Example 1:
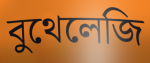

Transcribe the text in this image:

বুথেলেজি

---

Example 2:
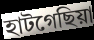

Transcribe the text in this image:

হাটগেছিয়া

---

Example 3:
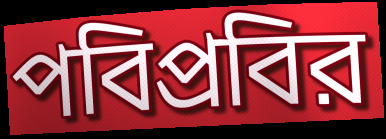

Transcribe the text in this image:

পবিপ্রবির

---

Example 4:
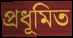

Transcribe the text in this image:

প্রধূমিত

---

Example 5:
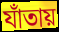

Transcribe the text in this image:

যাঁতায়